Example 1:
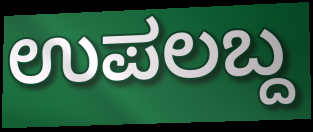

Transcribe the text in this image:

ಉಪಲಬ್ದ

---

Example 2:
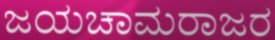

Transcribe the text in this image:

ಜಯಚಾಮರಾಜರ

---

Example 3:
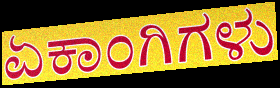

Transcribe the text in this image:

ಏಕಾಂಗಿಗಳು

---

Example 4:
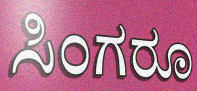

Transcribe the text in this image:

ಸಿಂಗರೂ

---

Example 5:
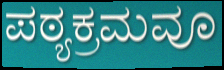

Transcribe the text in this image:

ಪಠ್ಯಕ್ರಮವೂ